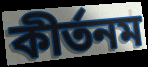
কীর্তনম